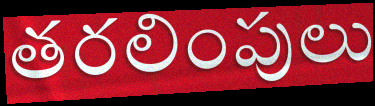
తరలింపులు